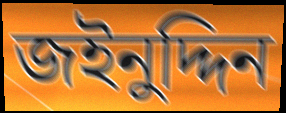
জইনুদ্দিন